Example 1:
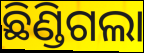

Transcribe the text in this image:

ଛିଣ୍ଡିଗଲା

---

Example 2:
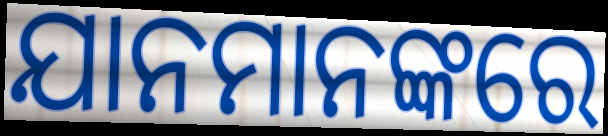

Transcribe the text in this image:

ଯାନମାନଙ୍କରେ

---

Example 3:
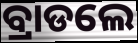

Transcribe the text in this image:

ବ୍ରାଡଲେ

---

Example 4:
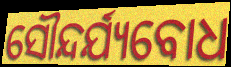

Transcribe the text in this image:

ସୌନ୍ଦର୍ଯ୍ୟବୋଧ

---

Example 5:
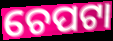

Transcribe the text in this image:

ଚେପଟା